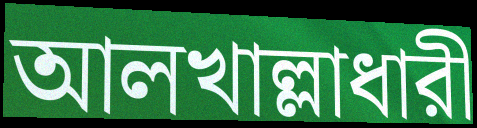
আলখাল্লাধারী